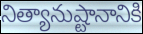
నిత్యానుష్టానానికి